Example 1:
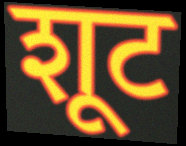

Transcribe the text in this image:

शूट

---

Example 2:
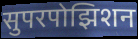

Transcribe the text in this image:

सुपरपोझिशन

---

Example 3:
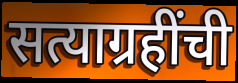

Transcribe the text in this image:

सत्याग्रहींची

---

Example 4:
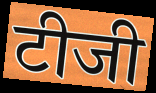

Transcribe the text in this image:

टीजी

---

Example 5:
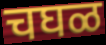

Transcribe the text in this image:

चघळ